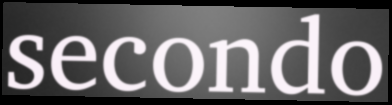
secondo